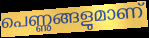
പെണ്ണുങ്ങളുമാണ്